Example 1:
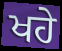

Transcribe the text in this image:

ਖਹੇ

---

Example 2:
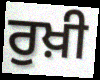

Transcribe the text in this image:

ਰੁਖ਼ੀ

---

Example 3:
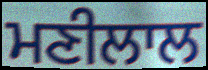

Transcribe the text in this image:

ਮਣੀਲਾਲ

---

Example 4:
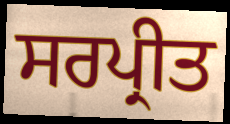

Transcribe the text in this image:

ਸਰਪ੍ਰੀਤ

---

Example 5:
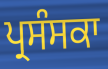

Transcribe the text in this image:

ਪ੍ਰਸੰਸਕਾ